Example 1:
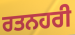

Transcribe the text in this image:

ਰਤਨਹਰੀ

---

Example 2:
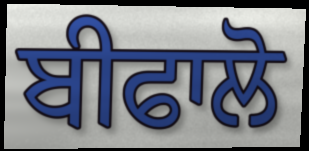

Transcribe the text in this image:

ਬੀਫਾਲੋ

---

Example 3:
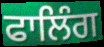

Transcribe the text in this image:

ਫਾਲਿੰਗ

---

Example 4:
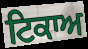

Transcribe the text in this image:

ਟਿਕਾਅ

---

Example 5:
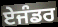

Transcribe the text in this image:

ਏਜੰਡਰ